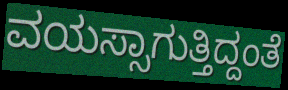
ವಯಸ್ಸಾಗುತ್ತಿದ್ದಂತೆ